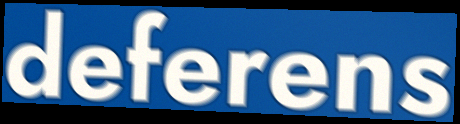
deferens